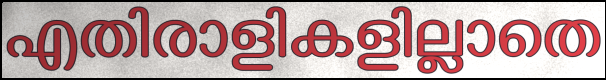
എതിരാളികളില്ലാതെ